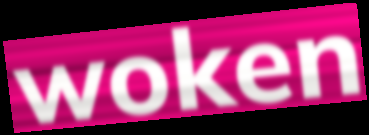
woken